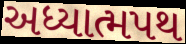
અધ્યાત્મપથ